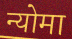
न्योमा